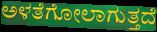
ಅಳತೆಗೋಲಾಗುತ್ತದೆ